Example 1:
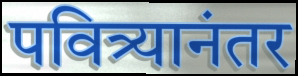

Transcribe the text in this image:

पवित्र्यानंतर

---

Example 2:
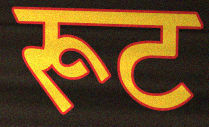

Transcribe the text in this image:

रूट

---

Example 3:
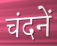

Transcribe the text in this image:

चंदनें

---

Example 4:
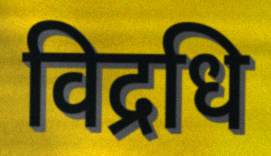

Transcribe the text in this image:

विद्रधि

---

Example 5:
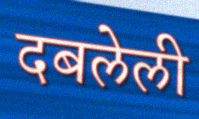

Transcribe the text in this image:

दबलेली